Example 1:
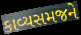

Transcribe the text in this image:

કાવ્યસમજને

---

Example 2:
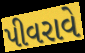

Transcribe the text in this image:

પીવરાવે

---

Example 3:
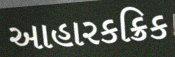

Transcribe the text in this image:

આહારકક્રિક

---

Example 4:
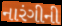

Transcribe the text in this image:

નારંગીની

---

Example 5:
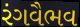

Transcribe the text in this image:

રંગવૈભવ